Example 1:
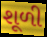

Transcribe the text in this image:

શૂળી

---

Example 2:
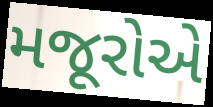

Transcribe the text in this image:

મજૂરોએ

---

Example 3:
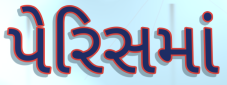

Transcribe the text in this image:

પેરિસમાં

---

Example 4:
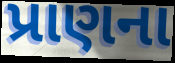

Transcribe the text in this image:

પ્રાણના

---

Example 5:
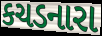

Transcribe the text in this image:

કચડનારા